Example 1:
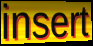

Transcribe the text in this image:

insert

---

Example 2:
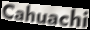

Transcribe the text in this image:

Cahuachi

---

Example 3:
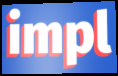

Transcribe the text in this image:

impl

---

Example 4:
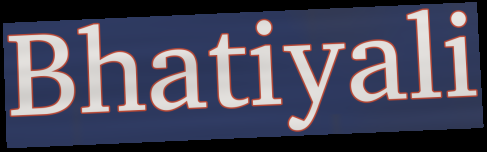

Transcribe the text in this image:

Bhatiyali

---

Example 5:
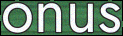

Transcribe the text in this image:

onus